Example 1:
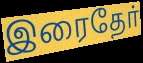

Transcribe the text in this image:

இரைதேர்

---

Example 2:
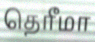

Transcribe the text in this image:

தெரீமா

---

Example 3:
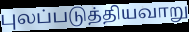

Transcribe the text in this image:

புலப்படுத்தியவாறு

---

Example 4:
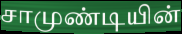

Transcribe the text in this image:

சாமுண்டியின்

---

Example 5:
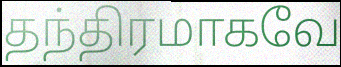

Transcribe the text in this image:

தந்திரமாகவே